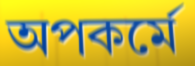
অপকর্মে